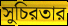
সুচিরতার